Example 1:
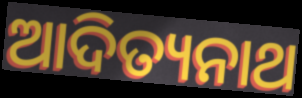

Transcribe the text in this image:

ଆଦିତ୍ୟନାଥ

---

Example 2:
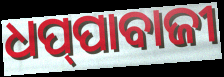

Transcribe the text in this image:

ଧପ୍‌ପାବାଜୀ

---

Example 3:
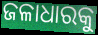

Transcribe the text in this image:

ଜଳାଧାରକୁ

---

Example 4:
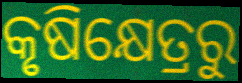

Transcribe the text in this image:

କୃଷିକ୍ଷେତ୍ରରୁ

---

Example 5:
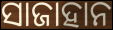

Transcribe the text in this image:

ସାଜାହାନ